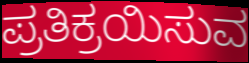
ಪ್ರತಿಕ್ರಯಿಸುವ